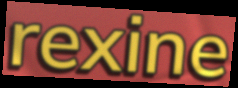
rexine